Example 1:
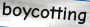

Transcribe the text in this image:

boycotting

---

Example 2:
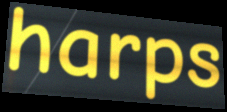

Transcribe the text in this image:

harps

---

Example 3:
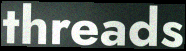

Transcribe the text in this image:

threads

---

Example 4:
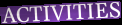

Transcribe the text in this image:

ACTIVITIES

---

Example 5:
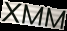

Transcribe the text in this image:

XMM